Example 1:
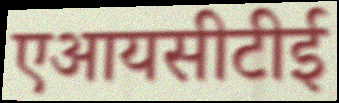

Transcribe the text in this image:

एआयसीटीई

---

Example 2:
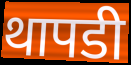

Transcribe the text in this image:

थापडी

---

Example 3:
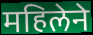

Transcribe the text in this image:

महिलेने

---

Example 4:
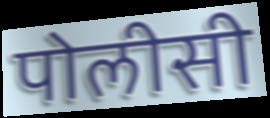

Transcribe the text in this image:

पोलीसी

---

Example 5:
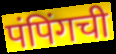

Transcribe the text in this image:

पंपिंगची